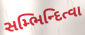
સમ્ભિન્દિત્વા